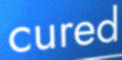
cured